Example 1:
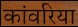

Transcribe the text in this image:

कांवरिया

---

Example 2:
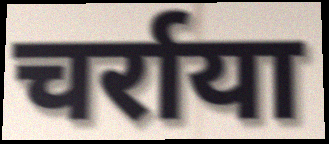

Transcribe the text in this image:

चर्राया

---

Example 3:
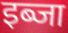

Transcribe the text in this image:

इब्जा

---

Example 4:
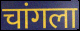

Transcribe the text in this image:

चांगला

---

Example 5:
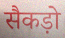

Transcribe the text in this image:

सैकड़ो